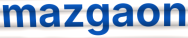
mazgaon